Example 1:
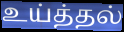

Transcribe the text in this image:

உய்த்தல்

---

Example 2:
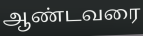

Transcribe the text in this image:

ஆண்டவரை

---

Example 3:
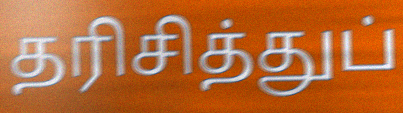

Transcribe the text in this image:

தரிசித்துப்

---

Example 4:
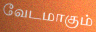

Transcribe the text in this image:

வேடமாகும்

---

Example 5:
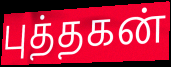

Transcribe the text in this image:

புத்தகன்